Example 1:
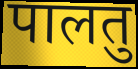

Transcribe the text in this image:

पालतु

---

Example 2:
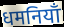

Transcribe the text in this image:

धमनियाँ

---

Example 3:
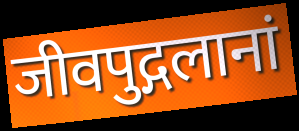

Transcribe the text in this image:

जीवपुद्गलानां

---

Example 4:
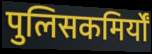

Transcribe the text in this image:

पुलिसकमिर्यों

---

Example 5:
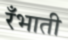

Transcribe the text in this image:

रँभाती